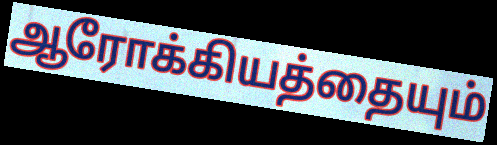
ஆரோக்கியத்தையும்